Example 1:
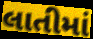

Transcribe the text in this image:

લાતીમાં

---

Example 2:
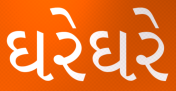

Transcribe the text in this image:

ઘરેઘરે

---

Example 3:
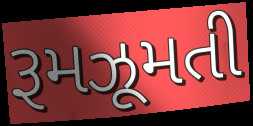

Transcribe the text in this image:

રૂમઝૂમતી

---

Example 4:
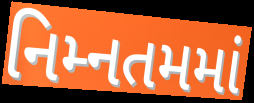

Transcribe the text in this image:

નિમ્નતમમાં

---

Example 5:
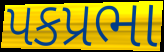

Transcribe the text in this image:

પકપ્રભા